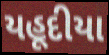
યહૂદીયા